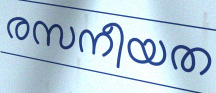
രസനീയത